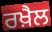
ਰਖ਼ੈਲ